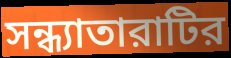
সন্ধ্যাতারাটির